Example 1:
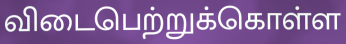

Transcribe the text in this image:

விடைபெற்றுக்கொள்ள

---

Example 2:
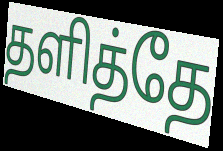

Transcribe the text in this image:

தளித்தே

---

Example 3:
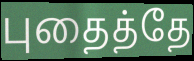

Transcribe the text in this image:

புதைத்தே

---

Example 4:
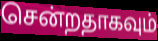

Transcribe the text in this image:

சென்றதாகவும்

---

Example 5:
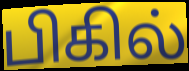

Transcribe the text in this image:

பிகில்